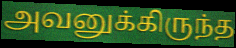
அவனுக்கிருந்த